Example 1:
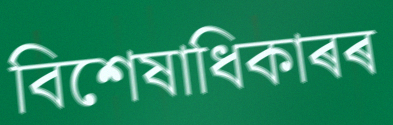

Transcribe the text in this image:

বিশেষাধিকাৰৰ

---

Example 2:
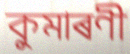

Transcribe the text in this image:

কুমাৰণী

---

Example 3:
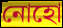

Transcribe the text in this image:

নোহো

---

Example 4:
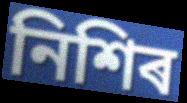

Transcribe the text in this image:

নিশিৰ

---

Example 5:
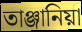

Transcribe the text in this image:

তাঞ্জানিয়া